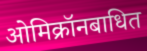
ओमिक्रॉनबाधित